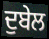
ਦੁਬੇਲ